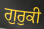
ਗੁਰੁਕੀ